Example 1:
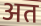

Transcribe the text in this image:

अत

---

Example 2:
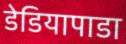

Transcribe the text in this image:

डेडियापाडा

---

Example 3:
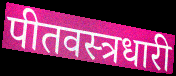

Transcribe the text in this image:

पीतवस्त्रधारी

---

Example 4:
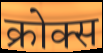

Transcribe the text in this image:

क्रोक्स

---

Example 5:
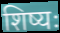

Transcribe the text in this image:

शिष्यः